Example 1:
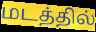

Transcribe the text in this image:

மடத்தில்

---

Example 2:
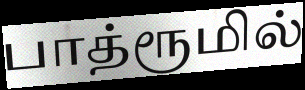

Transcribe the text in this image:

பாத்ரூமில்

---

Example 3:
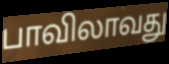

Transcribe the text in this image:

பாவிலாவது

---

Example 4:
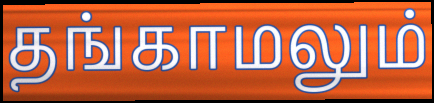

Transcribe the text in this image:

தங்காமலும்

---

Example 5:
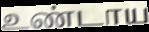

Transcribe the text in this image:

உண்டாய